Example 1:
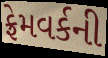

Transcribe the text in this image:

ફ્રેમવર્કની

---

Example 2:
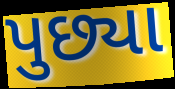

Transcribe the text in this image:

પુછ્યા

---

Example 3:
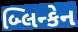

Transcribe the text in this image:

બ્લિન્કેન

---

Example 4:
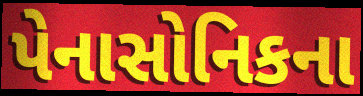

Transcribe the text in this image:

પેનાસોનિકના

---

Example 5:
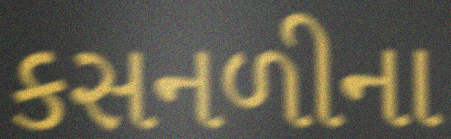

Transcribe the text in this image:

કસનળીના